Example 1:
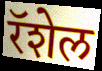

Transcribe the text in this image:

रॅशेल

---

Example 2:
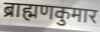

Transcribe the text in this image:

ब्राह्मणकुमार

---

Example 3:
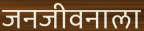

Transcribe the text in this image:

जनजीवनाला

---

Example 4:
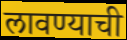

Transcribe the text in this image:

लावण्याची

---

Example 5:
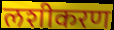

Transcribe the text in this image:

लशीकरण